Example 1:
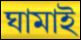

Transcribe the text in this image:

ঘামাই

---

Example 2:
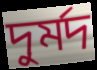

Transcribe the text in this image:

দুর্মদ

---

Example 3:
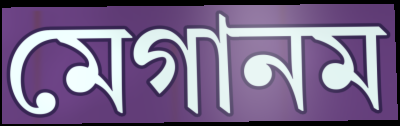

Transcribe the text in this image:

মেগানম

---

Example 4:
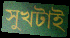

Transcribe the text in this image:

সুখটাই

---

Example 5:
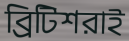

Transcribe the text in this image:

ব্রিটিশরাই